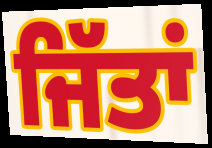
ਜਿੱਤਾਂ